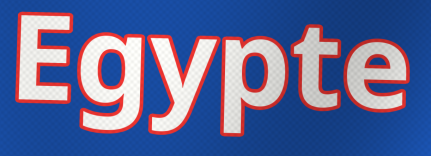
Egypte